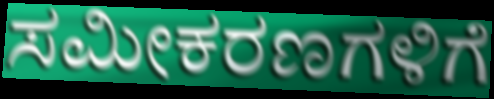
ಸಮೀಕರಣಗಳಿಗೆ